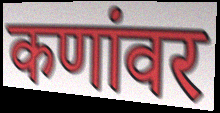
कणांवर